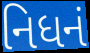
નિધનં